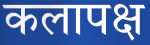
कलापक्ष